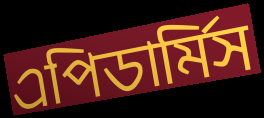
এপিডার্মিস